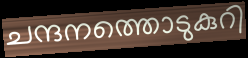
ചന്ദനത്തൊടുകുറി